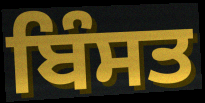
ਬਿੰਸਤ